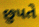
છુપતે